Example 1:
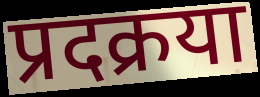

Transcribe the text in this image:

प्रदक्रया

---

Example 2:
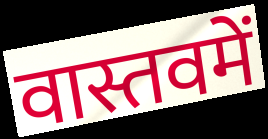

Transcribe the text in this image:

वास्तवमें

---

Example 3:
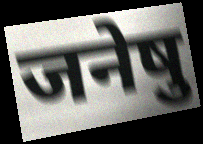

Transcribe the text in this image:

जनेषु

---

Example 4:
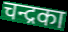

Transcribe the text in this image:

चन्द्रका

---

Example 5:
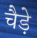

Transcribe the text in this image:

चैड़े